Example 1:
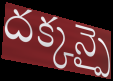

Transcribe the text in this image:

దక్కన్పై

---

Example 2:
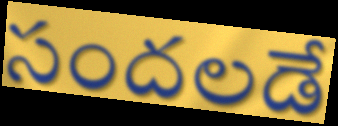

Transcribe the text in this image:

సందలడే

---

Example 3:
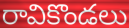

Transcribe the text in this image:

రావికొండలు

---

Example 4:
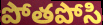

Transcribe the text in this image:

పోతపోసి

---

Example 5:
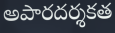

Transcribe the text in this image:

అపారదర్శకత